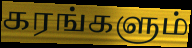
கரங்களும்